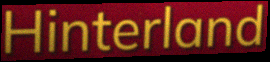
Hinterland